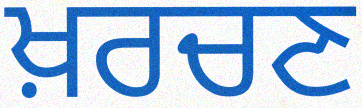
ਖ਼ਰਚਣ